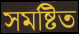
সমষ্টিত